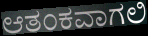
ಆತಂಕವಾಗಲಿ